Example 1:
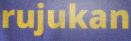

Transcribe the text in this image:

rujukan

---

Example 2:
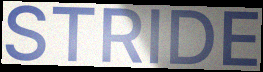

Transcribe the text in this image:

STRIDE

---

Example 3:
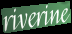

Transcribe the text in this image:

riverine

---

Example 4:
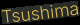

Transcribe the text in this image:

Tsushima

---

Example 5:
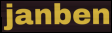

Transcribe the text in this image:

janben